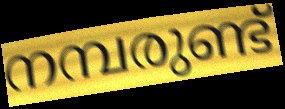
നമ്പരുണ്ട്